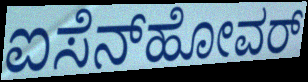
ಐಸೆನ್‍ಹೋವರ್